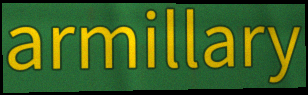
armillary